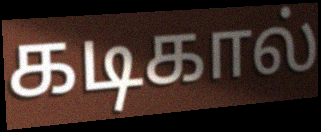
கடிகால்